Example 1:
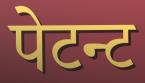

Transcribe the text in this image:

पेटन्ट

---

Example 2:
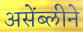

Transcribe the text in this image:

असेंब्लीने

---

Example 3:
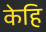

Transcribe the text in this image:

केहि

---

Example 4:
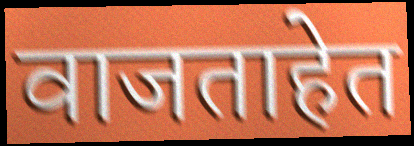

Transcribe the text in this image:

वाजताहेत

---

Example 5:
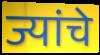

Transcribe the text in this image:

ज्यांचे